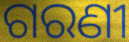
ଗରଣୀ